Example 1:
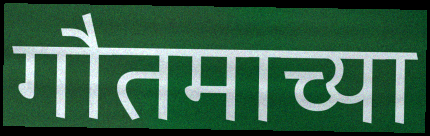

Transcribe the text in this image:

गौतमाच्या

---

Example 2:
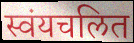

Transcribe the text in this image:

स्वंयचलित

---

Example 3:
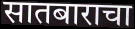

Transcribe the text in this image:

सातबाराचा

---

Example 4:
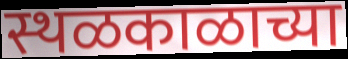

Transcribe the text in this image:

स्थळकाळाच्या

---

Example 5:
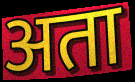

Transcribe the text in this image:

अता